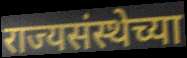
राज्यसंस्थेच्या